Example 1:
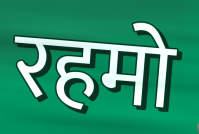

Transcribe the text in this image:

रहमो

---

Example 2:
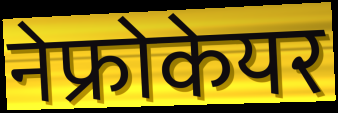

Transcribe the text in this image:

नेफ्रोकेयर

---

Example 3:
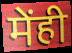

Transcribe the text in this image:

मेंही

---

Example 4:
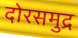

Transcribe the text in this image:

दोरसमुद्र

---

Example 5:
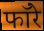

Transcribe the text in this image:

फॉरे